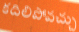
కదిలిపోవచ్చు